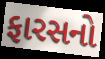
ફારસનો